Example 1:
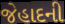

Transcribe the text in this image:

જેહાદની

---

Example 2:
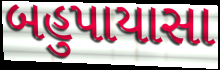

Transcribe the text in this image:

બહુપાયાસા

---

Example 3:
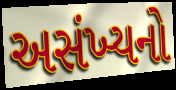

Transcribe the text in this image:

અસંખ્યનો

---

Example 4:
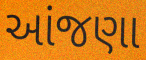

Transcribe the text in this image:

આંજણા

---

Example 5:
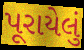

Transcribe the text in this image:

પૂરાયેલું